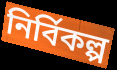
নির্বিকল্প